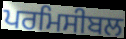
ਪਰਮਿਸੀਬਲ